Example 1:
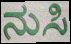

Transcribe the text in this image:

ನುಸಿ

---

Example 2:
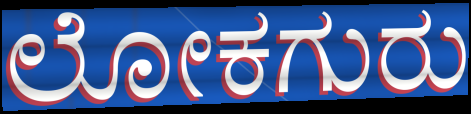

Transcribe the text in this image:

ಲೋಕಗುರು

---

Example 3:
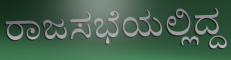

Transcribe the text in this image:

ರಾಜಸಭೆಯಲ್ಲಿದ್ದ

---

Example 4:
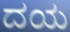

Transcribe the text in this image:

ದಯ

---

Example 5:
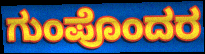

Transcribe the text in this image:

ಗುಂಪೊಂದರ